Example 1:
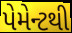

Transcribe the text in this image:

પેમેન્ટથી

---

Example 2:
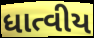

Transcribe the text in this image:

ધાત્વીય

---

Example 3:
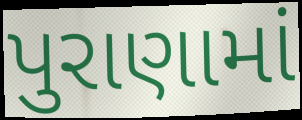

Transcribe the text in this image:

પુરાણામાં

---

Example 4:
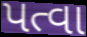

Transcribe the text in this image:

પત્વા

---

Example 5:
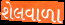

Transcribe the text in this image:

શેલવાળા